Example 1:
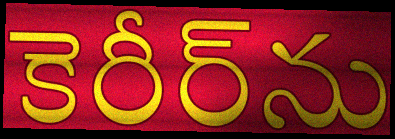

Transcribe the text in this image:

కెరీర్‌ను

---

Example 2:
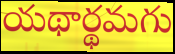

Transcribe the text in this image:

యథార్థమగు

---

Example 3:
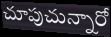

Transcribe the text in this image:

చూపుచున్నారో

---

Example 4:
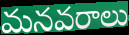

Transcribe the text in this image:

మనవరాలు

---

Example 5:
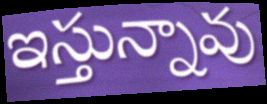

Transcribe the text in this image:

ఇస్తున్నావు